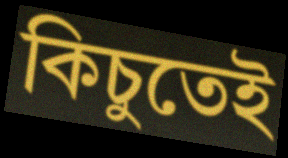
কিচুতেই